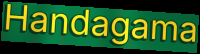
Handagama